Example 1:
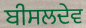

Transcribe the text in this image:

ਬੀਸਲਦੇਵ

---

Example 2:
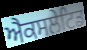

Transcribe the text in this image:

ਐਕਸਲੇਟਿਡ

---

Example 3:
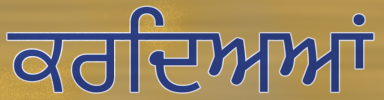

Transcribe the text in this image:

ਕਰਦਿਅਆਂ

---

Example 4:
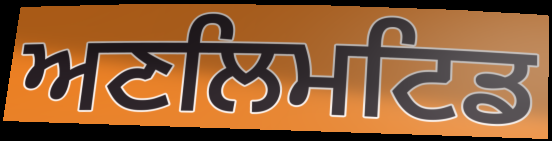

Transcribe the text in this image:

ਅਣਲਿਮਟਿਡ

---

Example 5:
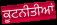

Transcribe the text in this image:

ਕੂਟਨੀਤੀਆਂ